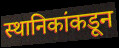
स्थानिकांकडून